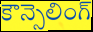
కౌన్సెలింగ్